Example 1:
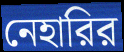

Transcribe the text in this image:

নেহারির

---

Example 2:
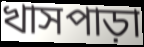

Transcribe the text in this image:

খাসপাড়া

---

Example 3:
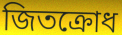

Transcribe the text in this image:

জিতক্রোধ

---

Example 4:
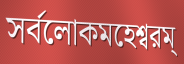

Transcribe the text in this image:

সর্বলোকমহেশ্বরম্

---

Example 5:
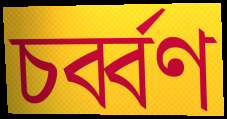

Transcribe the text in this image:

চর্ব্বণ